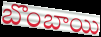
బొంబాయి